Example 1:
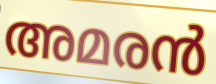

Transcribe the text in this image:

അമരൻ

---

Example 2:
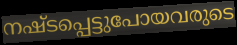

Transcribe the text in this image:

നഷ്ടപ്പെട്ടുപോയവരുടെ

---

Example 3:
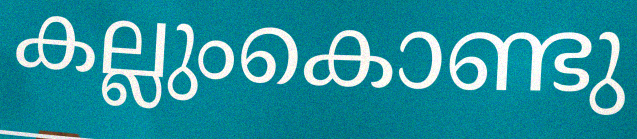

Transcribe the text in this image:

കല്ലുംകൊണ്ടു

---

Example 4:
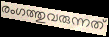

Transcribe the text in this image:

രംഗത്തുവരുന്നത്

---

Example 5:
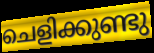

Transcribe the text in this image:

ചെളിക്കുണ്ടു